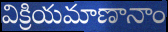
విక్రియమాణానాం